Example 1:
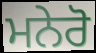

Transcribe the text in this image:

ਮਨੇਰੋ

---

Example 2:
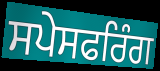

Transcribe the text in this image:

ਸਪੇਸਫਰਿੰਗ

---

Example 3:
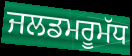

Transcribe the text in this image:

ਜਲਡਮਰੂਮੱਧ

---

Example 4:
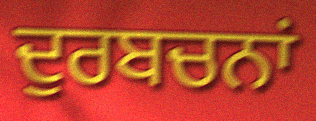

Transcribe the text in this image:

ਦੁਰਬਚਨਾਂ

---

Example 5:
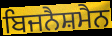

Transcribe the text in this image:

ਬਿਜਨੈਸ਼ਮੈਨ